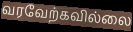
வரவேற்கவில்லை